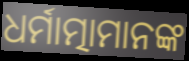
ଧର୍ମାତ୍ମାମାନଙ୍କ